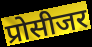
प्रोसीजर